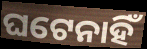
ଘଟେନାହିଁ